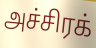
அச்சிரக்